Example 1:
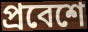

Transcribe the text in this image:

প্রবেশে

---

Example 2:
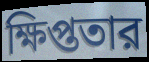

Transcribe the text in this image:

ক্ষিপ্ততার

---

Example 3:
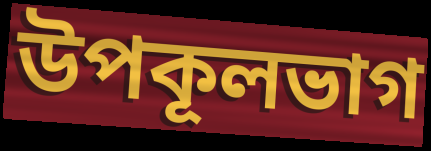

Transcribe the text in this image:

উপকূলভাগ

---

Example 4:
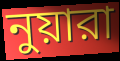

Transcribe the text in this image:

নুয়ারা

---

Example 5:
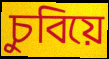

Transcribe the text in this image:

চুবিয়ে